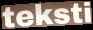
teksti